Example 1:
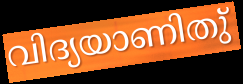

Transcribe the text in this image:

വിദ്യയാണിതു്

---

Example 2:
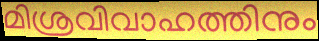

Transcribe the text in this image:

മിശ്രവിവാഹത്തിനും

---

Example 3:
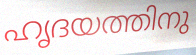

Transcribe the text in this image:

ഹൃദയത്തിനു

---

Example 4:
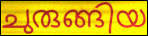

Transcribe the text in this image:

ചുരുങ്ങിയ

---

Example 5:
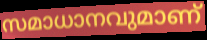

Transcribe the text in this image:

സമാധാനവുമാണ്